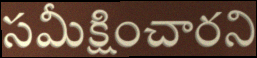
సమీక్షించారని